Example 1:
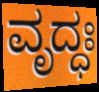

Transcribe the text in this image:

ವೃದ್ಧಃ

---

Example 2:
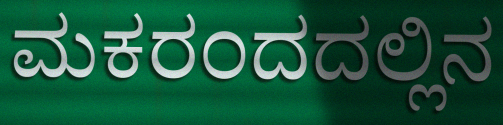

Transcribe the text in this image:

ಮಕರಂದದಲ್ಲಿನ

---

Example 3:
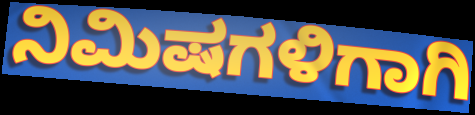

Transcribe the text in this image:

ನಿಮಿಷಗಳಿಗಾಗಿ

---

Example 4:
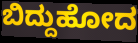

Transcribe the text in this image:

ಬಿದ್ದುಹೋದ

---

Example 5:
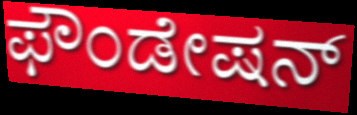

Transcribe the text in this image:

ಫೌಂಡೇಷನ್